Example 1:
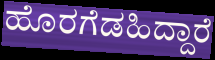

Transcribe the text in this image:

ಹೊರಗೆಡಹಿದ್ದಾರೆ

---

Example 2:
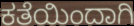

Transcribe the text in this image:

ಕತೆಯಿಂದಾಗಿ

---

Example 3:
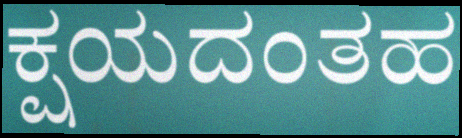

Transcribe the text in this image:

ಕ್ಷಯದಂತಹ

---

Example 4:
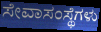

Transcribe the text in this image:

ಸೇವಾಸಂಸ್ಥೆಗಳು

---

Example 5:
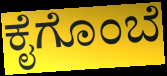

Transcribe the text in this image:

ಕೈಗೊಂಬೆ